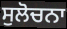
ਸੁਲੋਚਨਾ